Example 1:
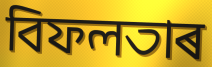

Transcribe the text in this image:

বিফলতাৰ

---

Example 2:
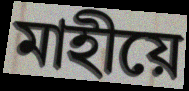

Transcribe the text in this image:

মাহীয়ে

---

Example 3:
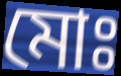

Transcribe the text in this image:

মোঃ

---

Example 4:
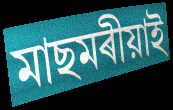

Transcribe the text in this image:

মাছমৰীয়াই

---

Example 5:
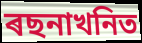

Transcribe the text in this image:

ৰছনাখনিত